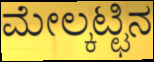
ಮೇಲ್ಕಟ್ಟಿನ